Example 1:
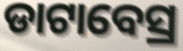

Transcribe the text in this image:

ଡାଟାବେସ୍ର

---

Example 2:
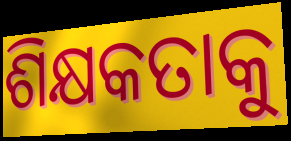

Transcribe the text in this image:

ଶିକ୍ଷକତାକୁ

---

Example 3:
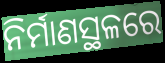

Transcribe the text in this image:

ନିର୍ମାଣସ୍ଥଳରେ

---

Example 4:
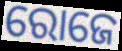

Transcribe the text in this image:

ରୋଜେ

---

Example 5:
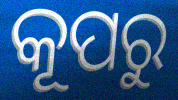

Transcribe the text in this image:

କୂପରୁ